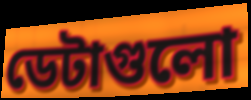
ডেটাগুলো